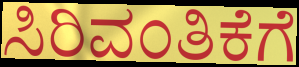
ಸಿರಿವಂತಿಕೆಗೆ